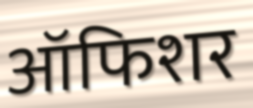
ऑफिशर